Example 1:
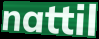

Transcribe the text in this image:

nattil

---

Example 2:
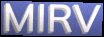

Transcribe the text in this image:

MIRV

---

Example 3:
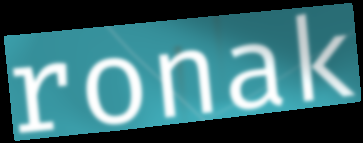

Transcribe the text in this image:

ronak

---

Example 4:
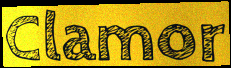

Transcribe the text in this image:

Clamor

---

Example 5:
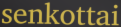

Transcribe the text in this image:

senkottai